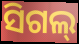
ସିଗଲ୍